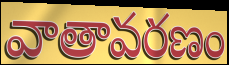
వాతావరణం